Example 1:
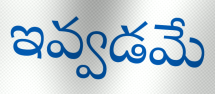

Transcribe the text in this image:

ఇవ్వడమే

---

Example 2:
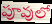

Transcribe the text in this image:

పూవులో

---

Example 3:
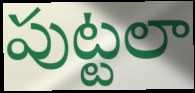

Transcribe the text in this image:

పుట్టలా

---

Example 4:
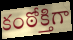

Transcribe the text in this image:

కంఠోక్తిగా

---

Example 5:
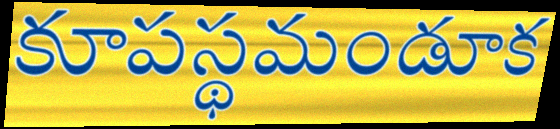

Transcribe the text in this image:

కూపస్థమండూక